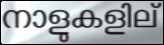
നാളുകളില്